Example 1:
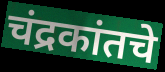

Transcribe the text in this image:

चंद्रकांतचे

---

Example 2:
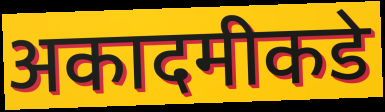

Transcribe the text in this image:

अकादमीकडे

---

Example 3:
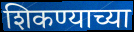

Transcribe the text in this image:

शिकण्याच्या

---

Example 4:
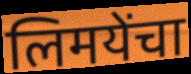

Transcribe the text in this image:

लिमयेंचा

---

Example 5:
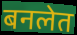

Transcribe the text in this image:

बनलेत